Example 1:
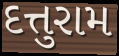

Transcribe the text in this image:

દત્તુરામ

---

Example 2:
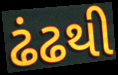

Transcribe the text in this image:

ઢંઢથી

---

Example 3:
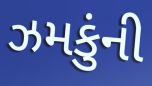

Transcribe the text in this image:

ઝમકુંની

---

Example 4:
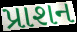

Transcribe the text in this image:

પ્રાશન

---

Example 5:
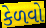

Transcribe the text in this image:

કેળવો